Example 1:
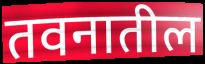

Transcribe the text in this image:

तवनातील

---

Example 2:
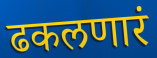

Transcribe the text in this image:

ढकलणारं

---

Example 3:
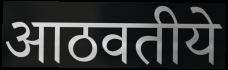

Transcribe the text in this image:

आठवतीये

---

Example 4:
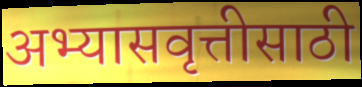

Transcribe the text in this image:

अभ्यासवृत्तीसाठी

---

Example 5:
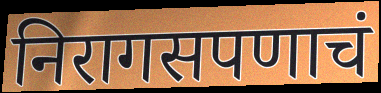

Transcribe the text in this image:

निरागसपणाचं